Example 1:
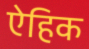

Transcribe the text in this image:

ऐहिक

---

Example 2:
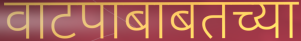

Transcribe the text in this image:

वाटपाबाबतच्या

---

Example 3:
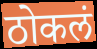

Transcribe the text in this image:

ठोकलं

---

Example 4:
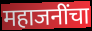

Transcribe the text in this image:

महाजनींचा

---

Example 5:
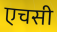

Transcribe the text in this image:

एचसी